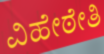
ವಿಹೇಠೇತಿ